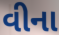
વીના